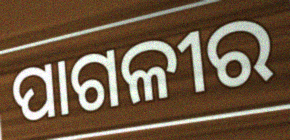
ପାଗଳୀର